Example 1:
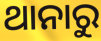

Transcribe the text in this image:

ଥାନାରୁ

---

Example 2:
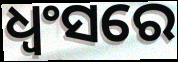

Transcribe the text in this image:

ଧ୍ୱଂସରେ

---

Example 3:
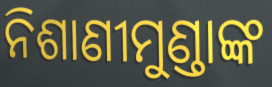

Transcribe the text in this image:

ନିଶାଣୀମୁଣ୍ଡାଙ୍କ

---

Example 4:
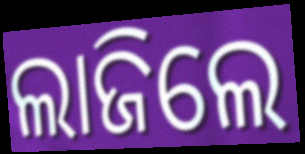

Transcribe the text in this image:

ଲାଜିଲେ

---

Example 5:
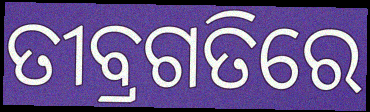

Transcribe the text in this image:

ତୀବ୍ରଗତିରେ